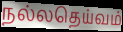
நல்லதெய்வம்